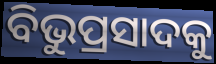
ବିଭୁପ୍ରସାଦକୁ